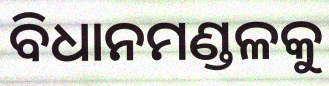
ବିଧାନମଣ୍ଡଳକୁ